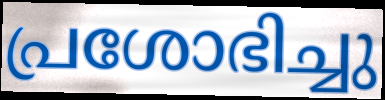
പ്രശോഭിച്ചു